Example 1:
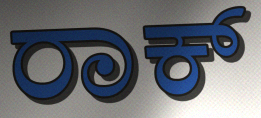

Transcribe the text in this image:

ರಾಕ್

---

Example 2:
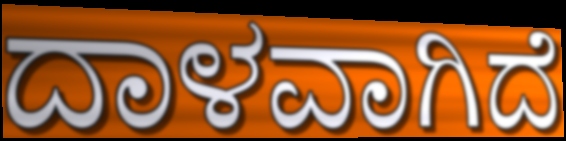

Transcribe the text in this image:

ದಾಳವಾಗಿದೆ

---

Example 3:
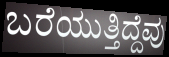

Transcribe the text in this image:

ಬರೆಯುತ್ತಿದ್ದೆವು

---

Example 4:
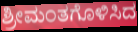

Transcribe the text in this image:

ಶ್ರೀಮಂತಗೊಳಿಸಿದ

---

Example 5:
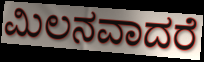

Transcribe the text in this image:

ಮಿಲನವಾದರೆ